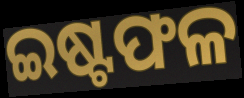
ଇଷ୍ଟଫଳ